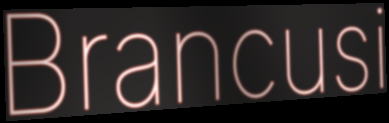
Brancusi